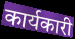
कार्यकारी